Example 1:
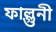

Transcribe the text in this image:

ফাল্গুনী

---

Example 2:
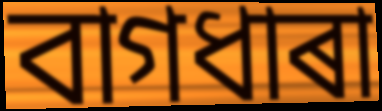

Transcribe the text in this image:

বাগধাৰা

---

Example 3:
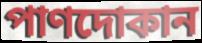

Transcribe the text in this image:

পাণদোকান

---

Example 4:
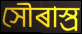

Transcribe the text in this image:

সৌৰাস্ত্ৰ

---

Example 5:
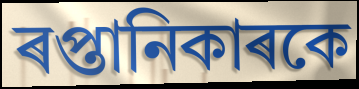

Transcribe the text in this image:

ৰপ্তানিকাৰকে